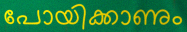
പോയിക്കാണും